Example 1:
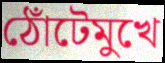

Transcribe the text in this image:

ঠোঁটেমুখে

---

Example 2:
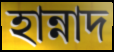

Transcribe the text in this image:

হান্নাদ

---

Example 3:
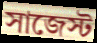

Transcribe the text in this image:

সাজেস্ট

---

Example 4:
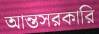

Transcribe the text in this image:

আন্তসরকারি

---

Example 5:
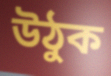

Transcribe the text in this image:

উঠুক